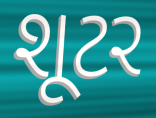
શૂટર